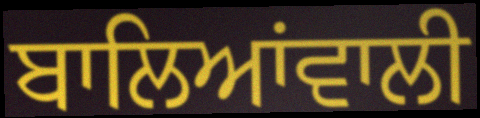
ਬਾਲਿਆਂਵਾਲੀ